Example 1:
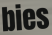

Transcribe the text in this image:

bies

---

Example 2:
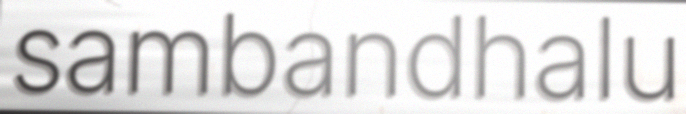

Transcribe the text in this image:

sambandhalu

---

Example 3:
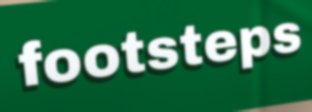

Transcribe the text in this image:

footsteps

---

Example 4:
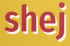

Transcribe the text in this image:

shej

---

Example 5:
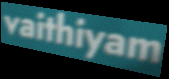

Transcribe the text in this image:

vaithiyam